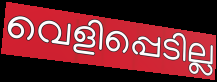
വെളിപ്പെടില്ല